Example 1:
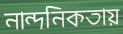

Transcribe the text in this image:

নান্দনিকতায়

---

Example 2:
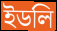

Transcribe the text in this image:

ইডলি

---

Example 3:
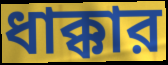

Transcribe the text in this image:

ধাক্কার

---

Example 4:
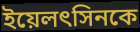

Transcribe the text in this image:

ইয়েলৎসিনকে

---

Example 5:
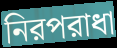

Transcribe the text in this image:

নিরপরাধা